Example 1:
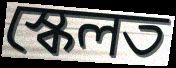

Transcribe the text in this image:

স্কেলত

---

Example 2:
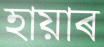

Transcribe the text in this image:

হায়াৰ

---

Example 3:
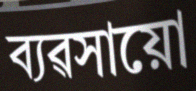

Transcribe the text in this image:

ব্যৱসায়ো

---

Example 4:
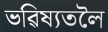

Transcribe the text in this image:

ভৱিষ্যতলৈ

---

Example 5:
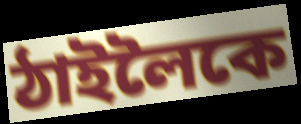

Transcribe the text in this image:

ঠাইলৈকে